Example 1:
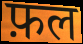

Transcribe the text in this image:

फ़ल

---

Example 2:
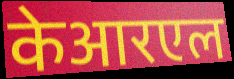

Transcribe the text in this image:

केआरएल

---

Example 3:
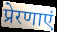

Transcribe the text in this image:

प्रेरणाएं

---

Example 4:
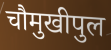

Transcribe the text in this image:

चौमुखीपुल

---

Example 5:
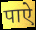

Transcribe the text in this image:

पाऐ